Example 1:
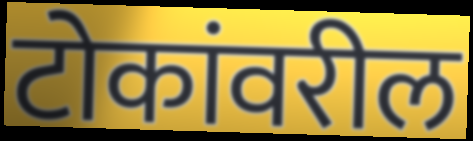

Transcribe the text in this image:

टोकांवरील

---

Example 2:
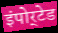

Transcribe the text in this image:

इंपोर्टेड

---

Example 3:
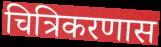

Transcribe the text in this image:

चित्रिकरणास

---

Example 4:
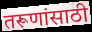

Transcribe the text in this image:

तरूणांसाठी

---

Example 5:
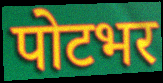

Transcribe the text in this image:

पोटभर